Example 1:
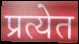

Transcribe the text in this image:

प्रत्येत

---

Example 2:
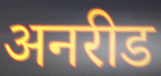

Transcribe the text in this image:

अनरीड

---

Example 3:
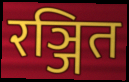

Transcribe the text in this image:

रञ्जित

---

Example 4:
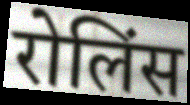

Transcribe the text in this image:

रोलिंस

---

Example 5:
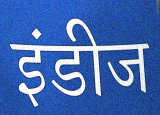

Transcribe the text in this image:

इंडीज